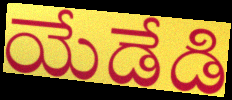
యేడేడి